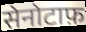
सेनोटाफ़